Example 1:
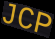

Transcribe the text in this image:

JCP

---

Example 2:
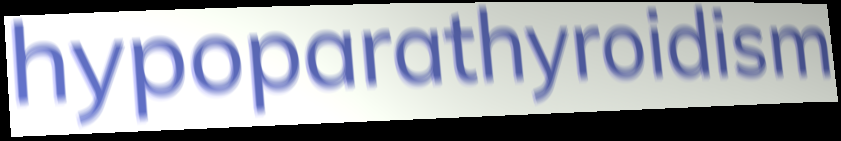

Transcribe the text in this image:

hypoparathyroidism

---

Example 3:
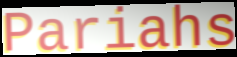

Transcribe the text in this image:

Pariahs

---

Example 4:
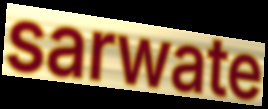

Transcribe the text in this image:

sarwate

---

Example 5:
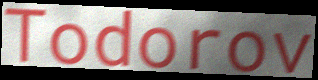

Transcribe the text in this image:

Todorov